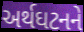
અર્થઘટનને